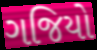
ગજિયો